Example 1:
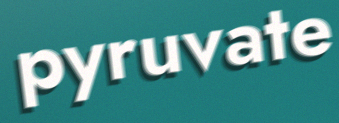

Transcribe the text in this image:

pyruvate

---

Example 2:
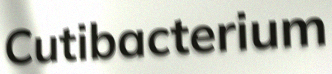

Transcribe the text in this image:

Cutibacterium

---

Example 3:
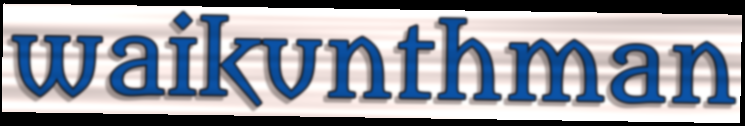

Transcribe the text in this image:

waikunthman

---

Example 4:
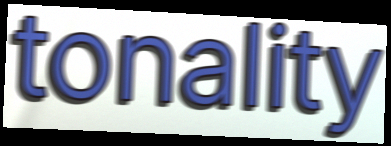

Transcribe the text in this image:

tonality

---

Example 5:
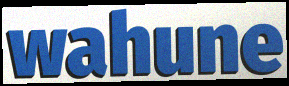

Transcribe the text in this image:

wahune